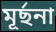
মূর্ছনা